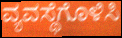
ವ್ಯವಸ್ಥೆಗೊಳಿಸಿ